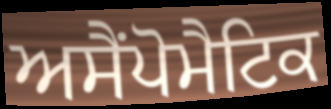
ਅਸੈਂਪੋਮੈਟਿਕ